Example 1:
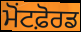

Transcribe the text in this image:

ਮੋਂਟਫ਼ੋਰਡ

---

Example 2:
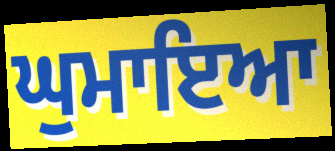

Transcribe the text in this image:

ਘੁਮਾਇਆ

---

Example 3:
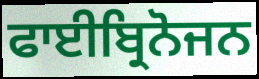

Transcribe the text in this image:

ਫਾਈਬ੍ਰਿਨੋਜਨ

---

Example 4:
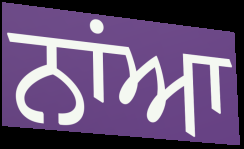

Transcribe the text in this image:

ਨਾਂਆ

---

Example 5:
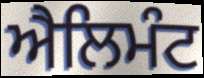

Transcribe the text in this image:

ਐਲਿਮੰਟ